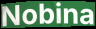
Nobina